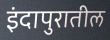
इंदापुरातील